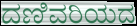
ದಣಿವರಿಯದ